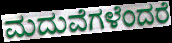
ಮದುವೆಗಳೆಂದರೆ